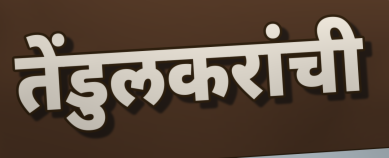
तेंडुलकरांची